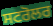
ਸਟਰੋਲਰ